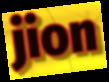
jion